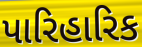
પારિહારિક